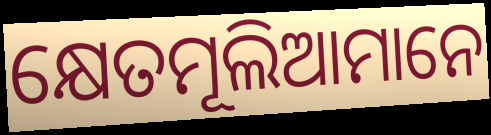
କ୍ଷେତମୂଲିଆମାନେ